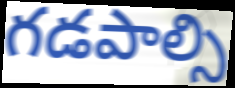
గడపాల్సి